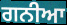
ਗਨੀਆ